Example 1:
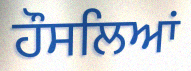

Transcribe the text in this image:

ਹੌਸਲਿਆਂ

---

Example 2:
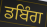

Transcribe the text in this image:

ਡਬਿੰਗ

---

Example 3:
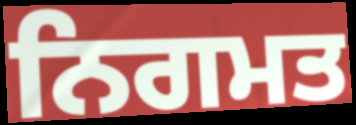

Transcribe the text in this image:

ਨਿਗਮਤ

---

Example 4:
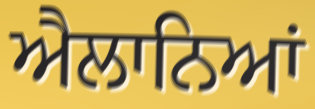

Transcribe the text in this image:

ਐਲਾਨਿਆਂ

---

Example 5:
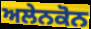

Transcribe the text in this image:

ਅਲੇਨਕੋਨ